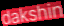
dakshin